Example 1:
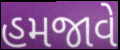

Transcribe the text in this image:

હમજાવે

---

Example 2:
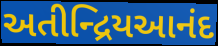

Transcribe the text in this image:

અતીન્દ્રિયઆનંદ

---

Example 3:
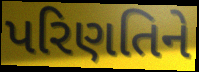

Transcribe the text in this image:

પરિણતિને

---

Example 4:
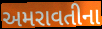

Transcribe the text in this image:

અમરાવતીના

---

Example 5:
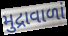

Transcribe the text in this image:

મુદ્રાવાળાં